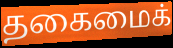
தகைமைக்